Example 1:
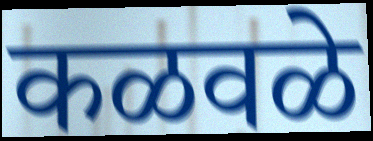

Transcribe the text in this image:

कळवळे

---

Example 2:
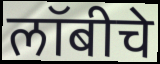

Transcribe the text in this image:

लॉबीचे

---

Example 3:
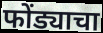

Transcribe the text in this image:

फोंड्याचा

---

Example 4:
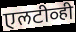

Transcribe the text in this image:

एलटीव्ही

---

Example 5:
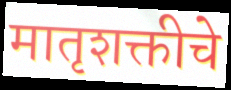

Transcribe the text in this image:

मातृशक्तीचे